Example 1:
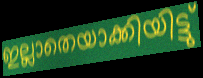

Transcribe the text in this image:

ഇല്ലാതെയാക്കിയിട്ടു്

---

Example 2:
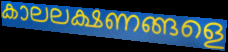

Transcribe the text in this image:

കാലലക്ഷണങ്ങളെ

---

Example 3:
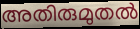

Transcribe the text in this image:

അതിരുമുതൽ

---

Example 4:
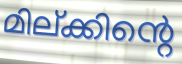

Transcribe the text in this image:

മില്ക്കിന്റെ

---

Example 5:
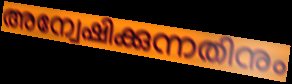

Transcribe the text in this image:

അന്വേഷിക്കുന്നതിനും